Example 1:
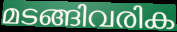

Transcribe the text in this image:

മടങ്ങിവരിക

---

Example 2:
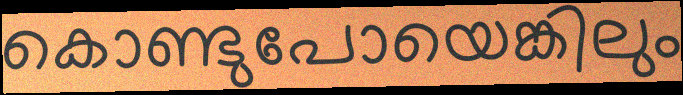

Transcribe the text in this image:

കൊണ്ടുപോയെങ്കിലും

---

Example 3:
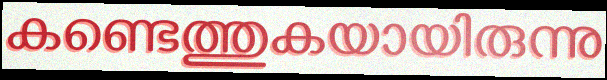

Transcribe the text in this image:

കണ്ടെത്തുകയായിരുന്നു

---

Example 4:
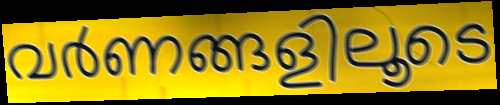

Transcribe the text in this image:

വർണങ്ങളിലൂടെ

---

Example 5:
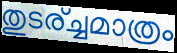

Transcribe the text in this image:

തുടര്ച്ചമാത്രം